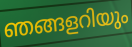
ഞങ്ങളറിയും